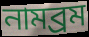
নামব্রম